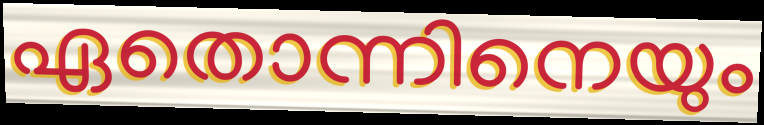
ഏതൊന്നിനെയും